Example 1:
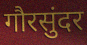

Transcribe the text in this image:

गौरसुंदर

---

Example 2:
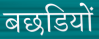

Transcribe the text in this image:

बछडियों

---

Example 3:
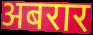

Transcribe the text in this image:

अबरार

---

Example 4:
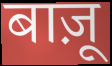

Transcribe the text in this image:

बाज़ू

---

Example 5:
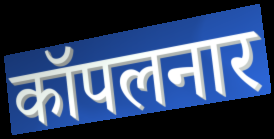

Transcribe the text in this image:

कॉपलनार